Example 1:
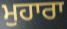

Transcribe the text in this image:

ਮੁਹਾਰਾ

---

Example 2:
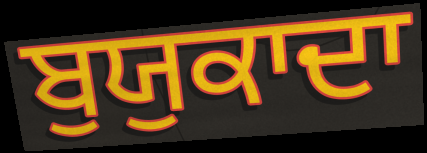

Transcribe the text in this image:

ਬੁਯੁਕਾਦਾ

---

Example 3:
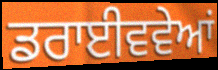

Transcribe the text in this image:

ਡਰਾਈਵਵੇਆਂ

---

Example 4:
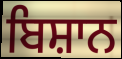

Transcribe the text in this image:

ਬਿਸ਼ਾਨ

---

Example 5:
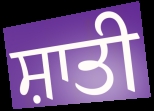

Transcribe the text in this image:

ਸ਼ਾਤੀ